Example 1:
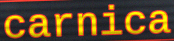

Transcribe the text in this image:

carnica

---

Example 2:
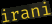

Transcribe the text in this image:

irani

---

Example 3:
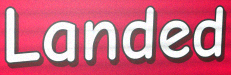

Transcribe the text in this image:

Landed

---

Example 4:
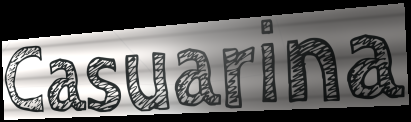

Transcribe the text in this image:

Casuarina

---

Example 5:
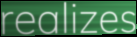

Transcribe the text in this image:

realizes